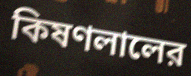
কিষণলালের